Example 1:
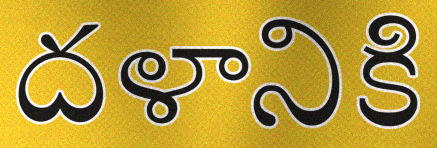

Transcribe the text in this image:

దళానికి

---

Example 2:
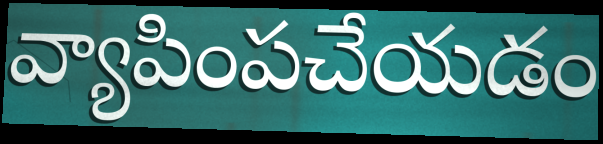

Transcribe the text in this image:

వ్యాపింపచేయడం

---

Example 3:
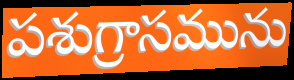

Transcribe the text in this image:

పశుగ్రాసమును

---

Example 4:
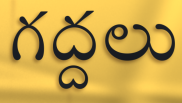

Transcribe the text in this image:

గద్దలు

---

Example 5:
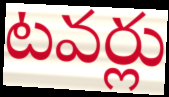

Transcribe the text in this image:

టవర్లు